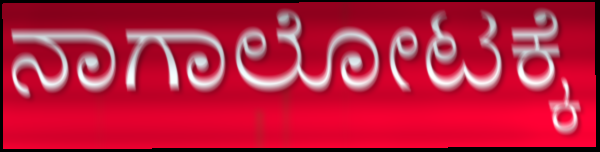
ನಾಗಾಲೋಟಕ್ಕೆ